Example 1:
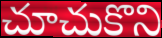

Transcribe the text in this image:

చూచుకొని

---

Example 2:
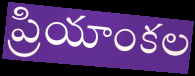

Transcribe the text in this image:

ప్రియాంకల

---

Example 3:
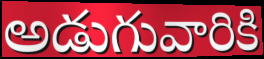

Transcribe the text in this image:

అడుగువారికి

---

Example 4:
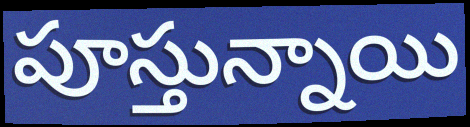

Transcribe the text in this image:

పూస్తున్నాయి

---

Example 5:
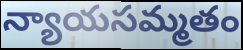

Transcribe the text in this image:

న్యాయసమ్మతం